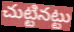
చుట్టినట్టు